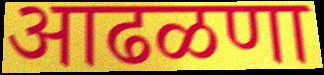
आढळणा